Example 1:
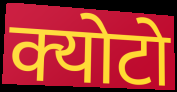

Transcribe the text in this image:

क्‍योटो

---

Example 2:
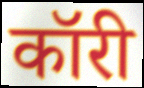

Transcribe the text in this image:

कॉरी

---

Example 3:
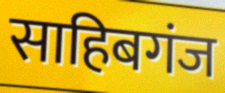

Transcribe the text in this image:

साहिबगंज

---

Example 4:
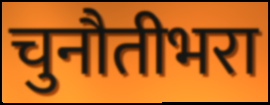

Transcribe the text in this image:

चुनौतीभरा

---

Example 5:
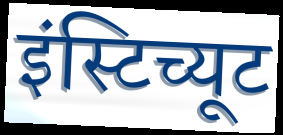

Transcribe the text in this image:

इंस्टिच्यूट